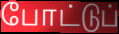
போட்டுப்